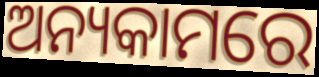
ଅନ୍ୟକାମରେ